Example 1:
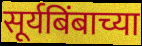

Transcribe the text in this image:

सूर्यबिंबाच्या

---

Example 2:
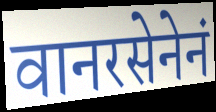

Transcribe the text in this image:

वानरसेनेनं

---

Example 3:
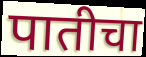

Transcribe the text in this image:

पातीचा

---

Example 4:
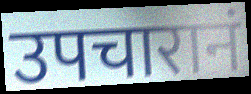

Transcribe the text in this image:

उपचारानं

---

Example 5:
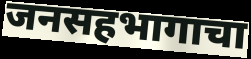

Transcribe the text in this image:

जनसहभागाचा